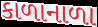
કાળાનાળા